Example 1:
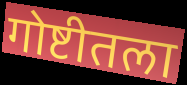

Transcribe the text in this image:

गोष्टीतला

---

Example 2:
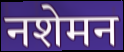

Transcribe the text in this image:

नशेमन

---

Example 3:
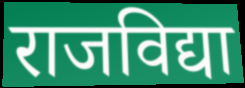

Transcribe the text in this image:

राजविद्या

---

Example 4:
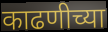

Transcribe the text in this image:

काढणीच्या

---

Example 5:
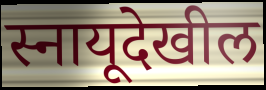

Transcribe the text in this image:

स्नायूदेखील